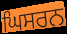
ਘਿਸਰਨ